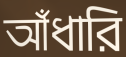
আঁধারি